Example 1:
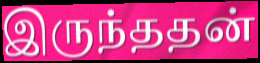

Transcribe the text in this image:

இருந்ததன்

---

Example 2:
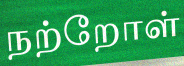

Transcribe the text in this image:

நற்றோள்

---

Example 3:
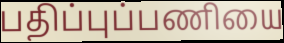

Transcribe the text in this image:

பதிப்புப்பணியை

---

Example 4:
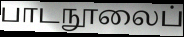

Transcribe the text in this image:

பாடநூலைப்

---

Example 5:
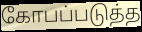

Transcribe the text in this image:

கோபப்படுத்த